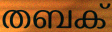
തബക്